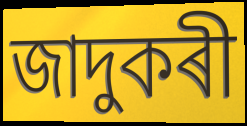
জাদুকৰী